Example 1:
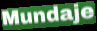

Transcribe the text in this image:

Mundaje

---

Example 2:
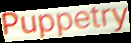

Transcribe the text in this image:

Puppetry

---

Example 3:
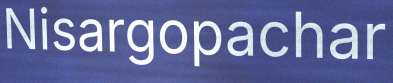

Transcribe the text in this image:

Nisargopachar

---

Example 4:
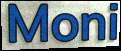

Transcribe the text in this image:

Moni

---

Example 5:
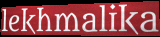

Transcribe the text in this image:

lekhmalika